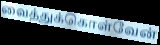
வைத்துக்கொள்வேன்